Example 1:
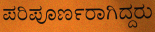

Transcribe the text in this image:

ಪರಿಪೂರ್ಣರಾಗಿದ್ದರು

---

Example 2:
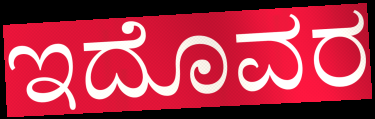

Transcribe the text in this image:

ಇದೊವರ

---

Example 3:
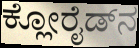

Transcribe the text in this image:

ಕ್ಲೋರೈಡ್‍ನ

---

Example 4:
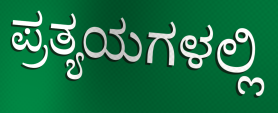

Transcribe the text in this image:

ಪ್ರತ್ಯಯಗಳಲ್ಲಿ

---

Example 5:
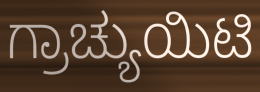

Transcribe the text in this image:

ಗ್ರಾಚ್ಯುಯಿಟಿ